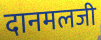
दानमलजी